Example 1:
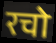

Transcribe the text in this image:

रचो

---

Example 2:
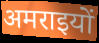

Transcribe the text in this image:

अमराइयों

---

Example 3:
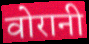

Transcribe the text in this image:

वोरानी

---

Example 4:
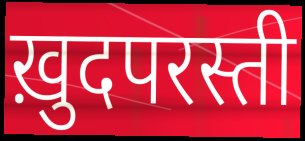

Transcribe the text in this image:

ख़ुदपरस्ती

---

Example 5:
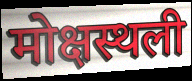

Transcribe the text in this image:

मोक्षस्थली